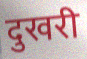
दुखरी